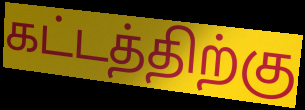
கட்டத்திற்கு